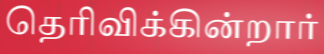
தெரிவிக்கின்றார்